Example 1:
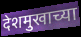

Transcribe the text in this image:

देशमुखाच्या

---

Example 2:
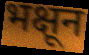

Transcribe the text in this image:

भक्षून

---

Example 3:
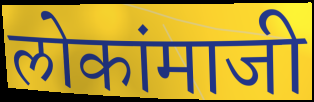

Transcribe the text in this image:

लोकांमाजी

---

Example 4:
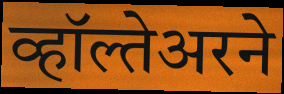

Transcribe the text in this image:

व्हॉल्तेअरने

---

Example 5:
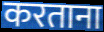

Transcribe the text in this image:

करताना